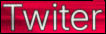
Twiter